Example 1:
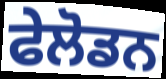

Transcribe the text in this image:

ਫੇਲੋਡਨ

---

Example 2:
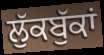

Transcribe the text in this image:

ਲੁੱਕਬੁੱਕਾਂ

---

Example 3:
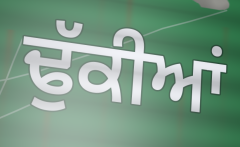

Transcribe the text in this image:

ਢੁੱਕੀਆਂ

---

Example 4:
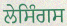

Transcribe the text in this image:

ਲੇਸਿੰਗਸ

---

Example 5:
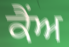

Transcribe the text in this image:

ਕੈਂਅ